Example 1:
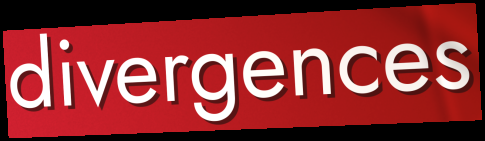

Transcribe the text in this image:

divergences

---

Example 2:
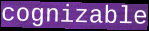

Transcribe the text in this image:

cognizable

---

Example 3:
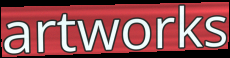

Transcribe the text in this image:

artworks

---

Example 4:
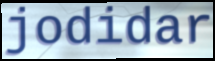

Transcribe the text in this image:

jodidar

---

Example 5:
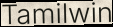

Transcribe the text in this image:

Tamilwin